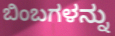
ಬಿಂಬಗಳನ್ನು